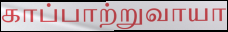
காப்பாற்றுவாயா